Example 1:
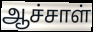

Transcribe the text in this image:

ஆச்சாள்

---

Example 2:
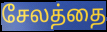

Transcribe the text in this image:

சேலத்தை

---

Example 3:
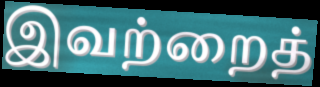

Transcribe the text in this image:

இவற்றைத்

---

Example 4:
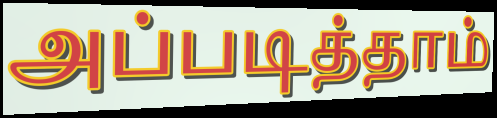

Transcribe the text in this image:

அப்படித்தாம்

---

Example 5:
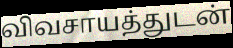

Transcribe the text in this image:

விவசாயத்துடன்